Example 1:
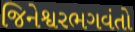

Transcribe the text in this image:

જિનેશ્વરભગવંતો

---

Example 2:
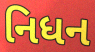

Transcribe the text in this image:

નિધન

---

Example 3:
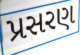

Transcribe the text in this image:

પ્રસરણ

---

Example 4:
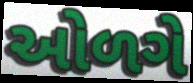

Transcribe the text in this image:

ઓળગે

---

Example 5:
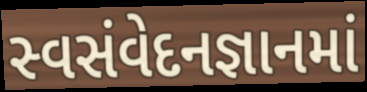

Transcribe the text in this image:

સ્વસંવેદનજ્ઞાનમાં